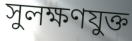
সুলক্ষণযুক্ত